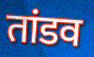
तांडव